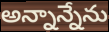
అన్నాన్నేను